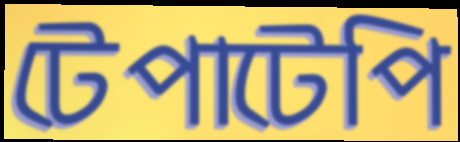
টেপাটেপি